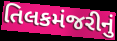
તિલકમંજરીનું